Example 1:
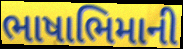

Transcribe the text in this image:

ભાષાભિમાની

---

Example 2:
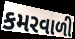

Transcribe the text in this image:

કમરવાળી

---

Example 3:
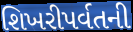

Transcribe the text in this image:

શિખરીપર્વતની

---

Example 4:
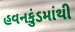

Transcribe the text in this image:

હવનકુંડમાંથી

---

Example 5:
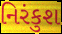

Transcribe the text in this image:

નિરંકુશ